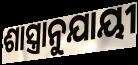
ଶାସ୍ତ୍ରାନୁଯାୟୀ